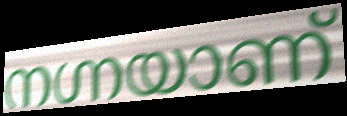
നഗ്നയാണ്